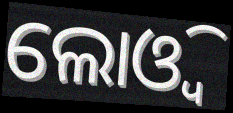
ଲୋଓ୍ବି